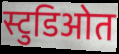
स्टुडिओत